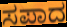
ಸಪಾದ